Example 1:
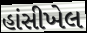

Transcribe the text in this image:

હાંસીખેલ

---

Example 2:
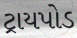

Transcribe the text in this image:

ટ્રાયપોડ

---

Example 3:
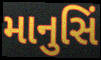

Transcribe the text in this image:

માનુસિં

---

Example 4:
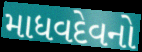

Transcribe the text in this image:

માધવદેવનો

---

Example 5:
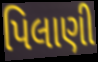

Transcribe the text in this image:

પિલાણી